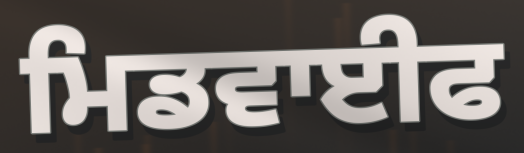
ਮਿਡਵਾਈਫ